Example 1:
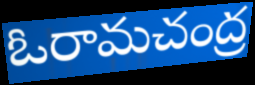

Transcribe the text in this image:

ఓరామచంద్ర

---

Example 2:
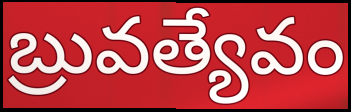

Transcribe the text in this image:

బ్రువత్యేవం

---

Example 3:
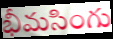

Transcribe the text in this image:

భీమసింగు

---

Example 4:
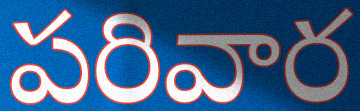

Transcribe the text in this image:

పరివార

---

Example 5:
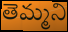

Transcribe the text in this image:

తెమ్మని